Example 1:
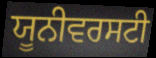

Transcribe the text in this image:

ਯੂਨੀਵਰਸਟੀ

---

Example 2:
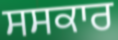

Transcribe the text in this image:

ਸਸਕਾਰ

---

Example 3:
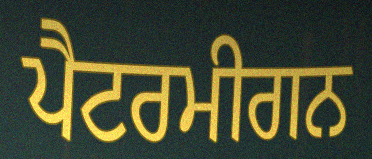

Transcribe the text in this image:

ਪੈਟਰਮੀਗਨ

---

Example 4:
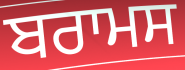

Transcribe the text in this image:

ਬਰਾਮਸ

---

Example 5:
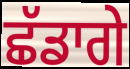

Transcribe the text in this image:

ਛੱਡਾਗੇ